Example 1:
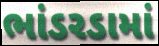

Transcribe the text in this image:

ભાંડરડામાં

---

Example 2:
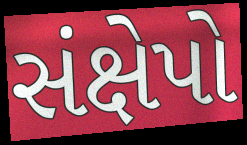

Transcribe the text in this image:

સંક્ષેપો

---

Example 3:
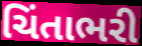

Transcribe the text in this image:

ચિંતાભરી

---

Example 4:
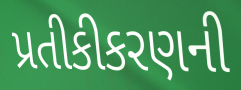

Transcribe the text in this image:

પ્રતીકીકરણની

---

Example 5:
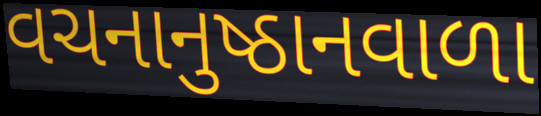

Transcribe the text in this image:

વચનાનુષ્ઠાનવાળા